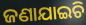
ଜଣାଯାଇଚି